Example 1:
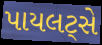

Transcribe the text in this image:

પાયલટ્સે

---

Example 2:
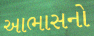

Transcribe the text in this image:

આભાસનો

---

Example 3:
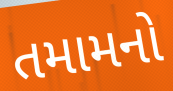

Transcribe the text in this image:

તમામનો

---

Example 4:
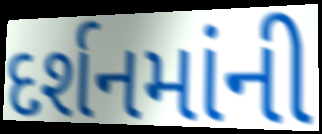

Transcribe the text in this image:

દર્શનમાંની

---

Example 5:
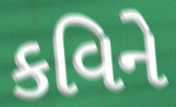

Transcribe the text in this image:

કવિને